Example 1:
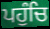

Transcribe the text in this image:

ਪਹੁੰਚਿ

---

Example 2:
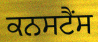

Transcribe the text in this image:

ਕਨਸਟੈਂਸ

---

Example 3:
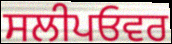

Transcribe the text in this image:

ਸਲੀਪਓਵਰ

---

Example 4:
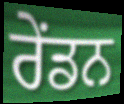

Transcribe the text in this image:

ਰੇਂਡਨ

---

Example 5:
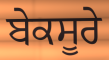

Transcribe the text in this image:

ਬੇਕਸੂਰੇ